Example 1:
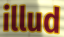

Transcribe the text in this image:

illud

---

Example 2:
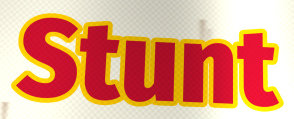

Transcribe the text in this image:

Stunt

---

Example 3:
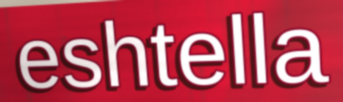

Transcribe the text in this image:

eshtella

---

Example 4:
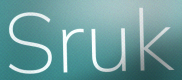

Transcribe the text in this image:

Sruk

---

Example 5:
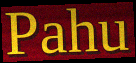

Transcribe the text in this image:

Pahu